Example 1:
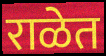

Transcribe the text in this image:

राळेत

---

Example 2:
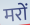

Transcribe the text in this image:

मरों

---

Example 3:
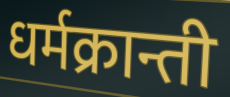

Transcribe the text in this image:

धर्मक्रान्ती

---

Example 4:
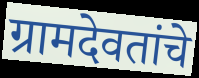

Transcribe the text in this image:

ग्रामदेवतांचे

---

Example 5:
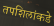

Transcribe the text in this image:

तपशिलांकडे